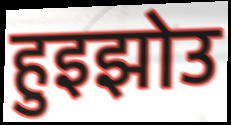
हुइझोउ